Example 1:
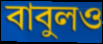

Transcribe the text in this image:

বাবুলও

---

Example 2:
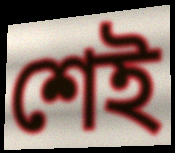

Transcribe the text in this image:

শেই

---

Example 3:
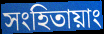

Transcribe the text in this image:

সংহিতায়াং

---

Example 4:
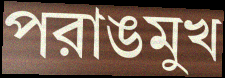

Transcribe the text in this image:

পরাঙমুখ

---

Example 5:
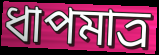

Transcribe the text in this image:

ধাপমাত্র